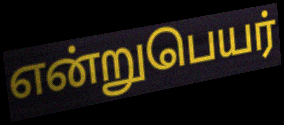
என்றுபெயர்